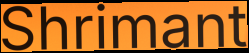
Shrimant